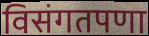
विसंगतपणा